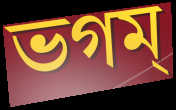
ভগম্